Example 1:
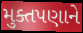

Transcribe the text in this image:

મુક્તપણાને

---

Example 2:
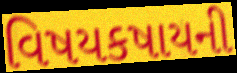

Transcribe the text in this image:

વિષયકષાયની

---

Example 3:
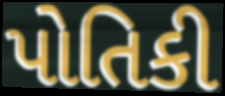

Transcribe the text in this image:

પોતિકી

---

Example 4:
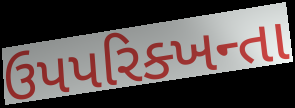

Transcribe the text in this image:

ઉપપરિક્ખન્તા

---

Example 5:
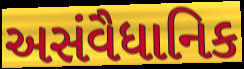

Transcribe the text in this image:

અસંવૈધાનિક